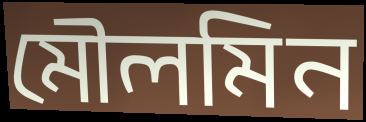
মৌলমিন